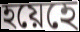
হয়েহে